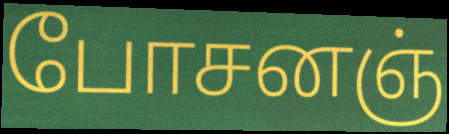
போசனஞ்